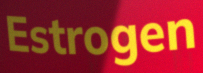
Estrogen